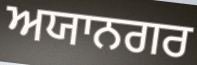
ਅਯਾਨਗਰ